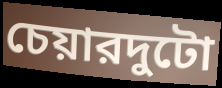
চেয়ারদুটো